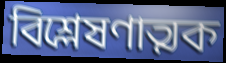
বিশ্লেষণাত্মক